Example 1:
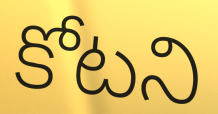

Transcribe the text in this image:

కోటని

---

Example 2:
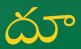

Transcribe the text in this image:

దూ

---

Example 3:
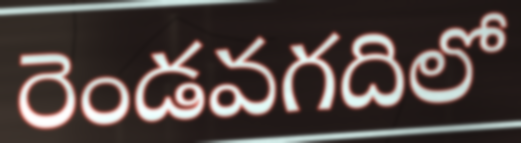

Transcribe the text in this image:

రెండవగదిలో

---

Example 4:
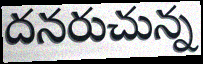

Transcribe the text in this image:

దనరుచున్న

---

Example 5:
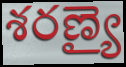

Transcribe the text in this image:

శరణ్యై